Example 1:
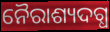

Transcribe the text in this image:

ନୈରାଶ୍ୟଦଗ୍ଧ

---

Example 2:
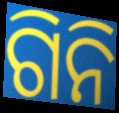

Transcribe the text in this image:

ଗିନି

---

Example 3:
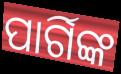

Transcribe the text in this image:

ପାର୍ଗିଙ୍କ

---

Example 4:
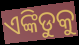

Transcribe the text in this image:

ଏଙ୍କିଡୁକୁ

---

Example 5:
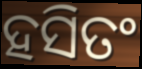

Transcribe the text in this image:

ହସିତଂ